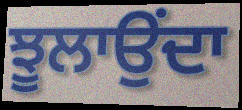
ਝੂਲਾਉਂਦਾ